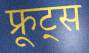
फ्रूट्स